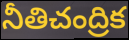
నీతిచంద్రిక